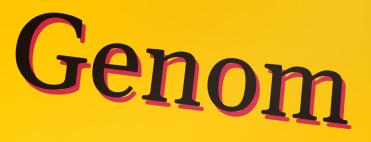
Genom